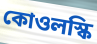
কোওলস্কি